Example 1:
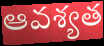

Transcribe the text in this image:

ఆవశ్యత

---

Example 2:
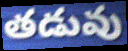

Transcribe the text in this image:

తడువు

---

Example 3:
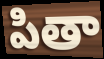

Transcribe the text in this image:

పితా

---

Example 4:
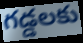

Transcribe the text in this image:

గడ్డలకు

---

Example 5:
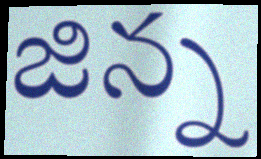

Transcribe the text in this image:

జిన్న